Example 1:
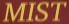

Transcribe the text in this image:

MIST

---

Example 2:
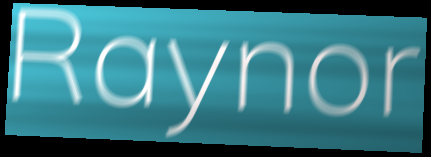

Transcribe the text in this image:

Raynor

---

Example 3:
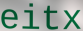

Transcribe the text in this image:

eitx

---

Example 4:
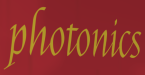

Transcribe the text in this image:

photonics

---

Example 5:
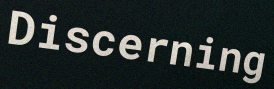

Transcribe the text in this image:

Discerning